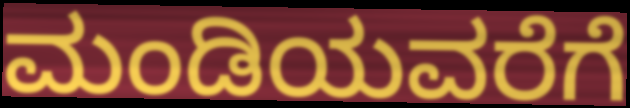
ಮಂಡಿಯವರೆಗೆ